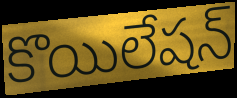
కొయిలేషన్